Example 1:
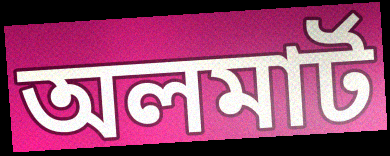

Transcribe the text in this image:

অলমার্ট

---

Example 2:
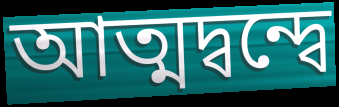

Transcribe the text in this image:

আত্মদ্বন্দ্বে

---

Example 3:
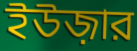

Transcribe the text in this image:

ইউজ়ার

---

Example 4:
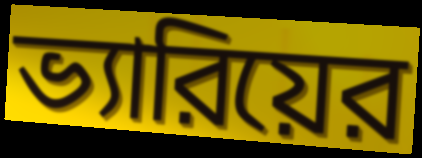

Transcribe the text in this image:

ভ্যারিয়ের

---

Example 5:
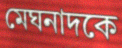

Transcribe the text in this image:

মেঘনাদকে